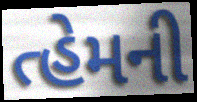
ત્હેમની